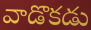
వాడొకడు